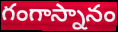
గంగాస్నానం